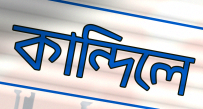
কান্দিলে